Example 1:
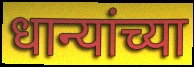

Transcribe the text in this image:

धान्यांच्या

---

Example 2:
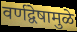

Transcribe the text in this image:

वर्णद्वेषामुळे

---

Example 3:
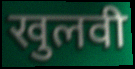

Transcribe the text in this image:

खुलवी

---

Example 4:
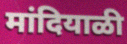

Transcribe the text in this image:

मांदियाळी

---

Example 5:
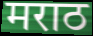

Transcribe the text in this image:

मराठ